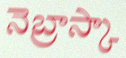
నెబ్రాస్కా